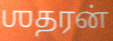
ஶதரன்